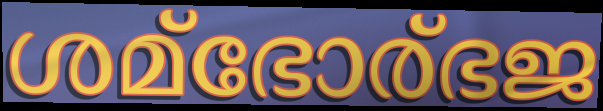
ശമ്ഭോര്ഭജ